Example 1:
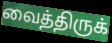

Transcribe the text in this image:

வைத்திருக்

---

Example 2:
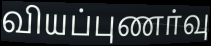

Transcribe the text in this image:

வியப்புணர்வு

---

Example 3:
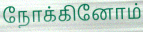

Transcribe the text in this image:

நோக்கினோம்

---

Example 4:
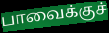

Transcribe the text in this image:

பாவைக்குச்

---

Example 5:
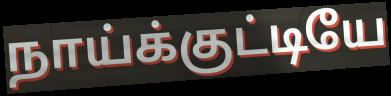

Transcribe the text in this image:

நாய்க்குட்டியே